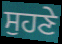
ਸੁਹਣੇ